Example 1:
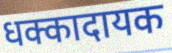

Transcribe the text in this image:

धक्कादायक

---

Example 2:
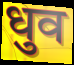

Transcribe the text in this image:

धुव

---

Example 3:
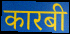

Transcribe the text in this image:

कारबी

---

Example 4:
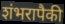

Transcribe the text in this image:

शंभरापैकी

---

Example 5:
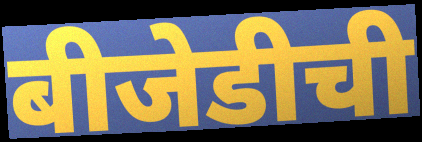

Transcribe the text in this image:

बीजेडीची